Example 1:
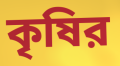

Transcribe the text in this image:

কৃষির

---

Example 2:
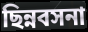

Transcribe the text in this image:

ছিন্নবসনা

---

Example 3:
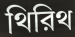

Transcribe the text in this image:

থিরিথ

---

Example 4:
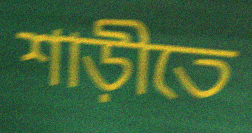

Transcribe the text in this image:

শাড়ীতে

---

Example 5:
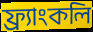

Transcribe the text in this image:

ফ্র্যাংকলি